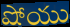
షోయు